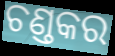
ଚଣ୍ଡକର